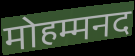
मोहम्मनद